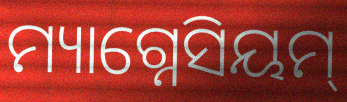
ମ୍ୟାଗ୍ନେସିୟମ୍